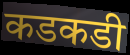
कडकडी